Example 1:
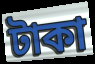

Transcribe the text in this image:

টাকা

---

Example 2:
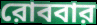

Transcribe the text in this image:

রোববার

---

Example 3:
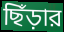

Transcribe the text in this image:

ছিঁড়ার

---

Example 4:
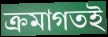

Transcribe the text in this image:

ক্রমাগতই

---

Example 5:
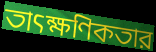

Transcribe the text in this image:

তাৎক্ষণিকতার